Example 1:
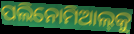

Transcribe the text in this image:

ପଲିନୋମିଆଲ୍‌କୁ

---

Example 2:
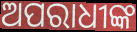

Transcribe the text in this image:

ଅପରାଧୀଙ୍କ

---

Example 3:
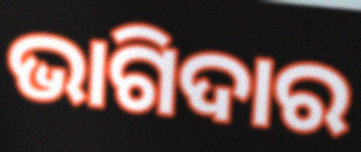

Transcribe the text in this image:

ଭାଗିଦାର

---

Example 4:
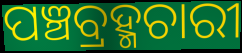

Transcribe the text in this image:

ପଞ୍ଚବ୍ରହ୍ମଚାରୀ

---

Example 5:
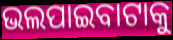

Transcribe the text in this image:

ଭଲପାଇବାଟାକୁ